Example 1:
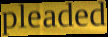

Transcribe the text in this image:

pleaded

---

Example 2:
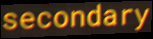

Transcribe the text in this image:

secondary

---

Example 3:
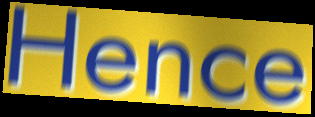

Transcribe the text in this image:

Hence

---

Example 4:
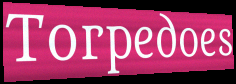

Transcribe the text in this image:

Torpedoes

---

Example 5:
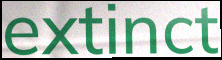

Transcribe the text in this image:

extinct